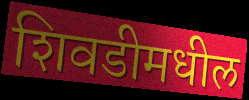
शिवडीमधील